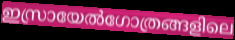
ഇസ്രായേൽഗോത്രങ്ങളിലെ